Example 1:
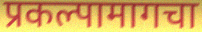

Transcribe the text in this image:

प्रकल्पामागचा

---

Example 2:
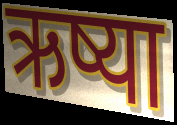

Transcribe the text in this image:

ऋष्या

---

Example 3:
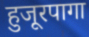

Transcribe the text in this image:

हुजूरपागा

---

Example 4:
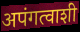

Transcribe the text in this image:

अपंगत्वाशी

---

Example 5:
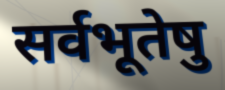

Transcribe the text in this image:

सर्वभूतेषु